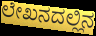
ಲೇಖನದಲ್ಲಿನ